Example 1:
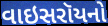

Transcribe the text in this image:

વાઇસરૉયનો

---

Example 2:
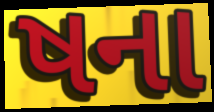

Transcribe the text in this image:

ષના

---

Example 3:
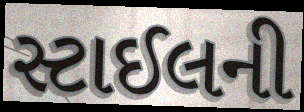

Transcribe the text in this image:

સ્ટાઈલની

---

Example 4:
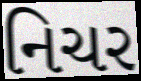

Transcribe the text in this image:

નિચર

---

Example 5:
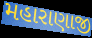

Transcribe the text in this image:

મહારાણાજી